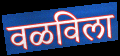
वळविला